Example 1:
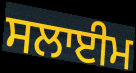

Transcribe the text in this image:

ਸਲਾਈਮ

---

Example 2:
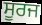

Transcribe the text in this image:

ਸੂਰਜ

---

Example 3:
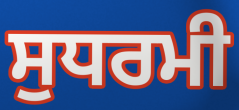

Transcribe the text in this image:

ਸੁਧਰਮੀ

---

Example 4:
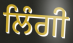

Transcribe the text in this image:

ਲਿੰਗੀ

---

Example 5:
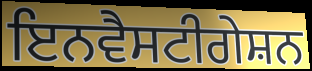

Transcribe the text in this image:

ਇਨਵੈਸਟੀਗੇਸ਼ਨ